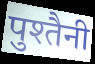
पुश्तैनी